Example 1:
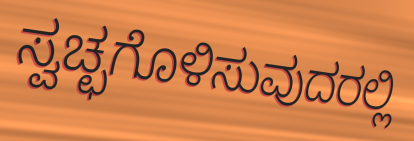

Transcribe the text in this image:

ಸ್ವಚ್ಛಗೊಳಿಸುವುದರಲ್ಲಿ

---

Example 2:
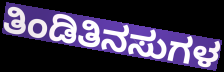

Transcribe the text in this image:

ತಿಂಡಿತಿನಸುಗಳ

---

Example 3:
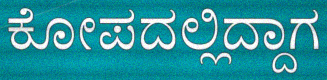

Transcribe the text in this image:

ಕೋಪದಲ್ಲಿದ್ದಾಗ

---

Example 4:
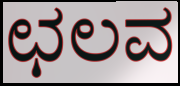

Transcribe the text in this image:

ಛಲವ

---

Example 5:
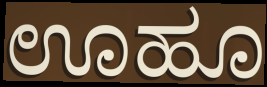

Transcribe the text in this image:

ಊಹೂ